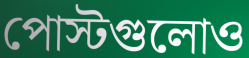
পোস্টগুলোও